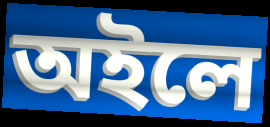
অইলে